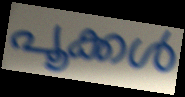
പൂക്കൾ